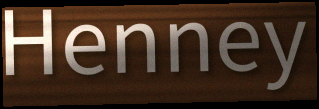
Henney